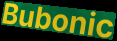
Bubonic